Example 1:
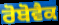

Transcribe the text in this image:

ਰੋਬੋਵੈਕ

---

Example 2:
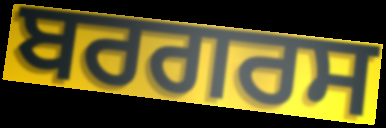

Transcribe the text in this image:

ਬਰਗਰਸ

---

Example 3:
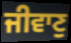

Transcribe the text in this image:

ਜੀਵਾਣੁ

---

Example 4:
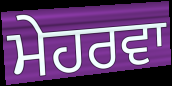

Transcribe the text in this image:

ਮੇਹਰਵਾ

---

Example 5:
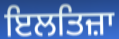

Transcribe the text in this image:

ਇਲਤਿਜ਼ਾ